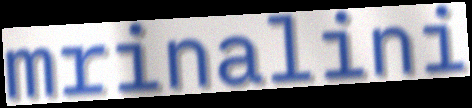
mrinalini